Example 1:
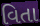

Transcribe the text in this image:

વિતા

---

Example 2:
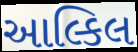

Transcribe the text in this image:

આલ્કિલ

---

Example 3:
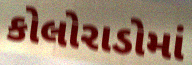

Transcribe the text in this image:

કોલોરાડોમાં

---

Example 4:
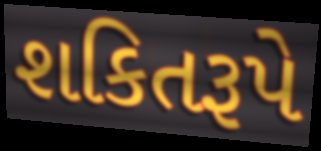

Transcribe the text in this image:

શકિતરૂપે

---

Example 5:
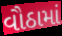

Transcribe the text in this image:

વૌઠામાં